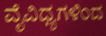
ವೈವಿಧ್ಯಗಳಿಂದ